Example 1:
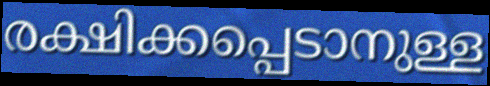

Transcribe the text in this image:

രക്ഷിക്കപ്പെടാനുള്ള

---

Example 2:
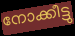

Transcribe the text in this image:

നോക്കീട്ടു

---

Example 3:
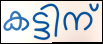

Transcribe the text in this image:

കട്ടിന്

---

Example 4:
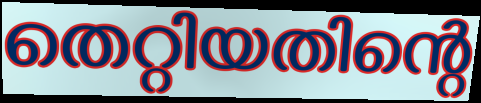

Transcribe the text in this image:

തെറ്റിയതിന്റെ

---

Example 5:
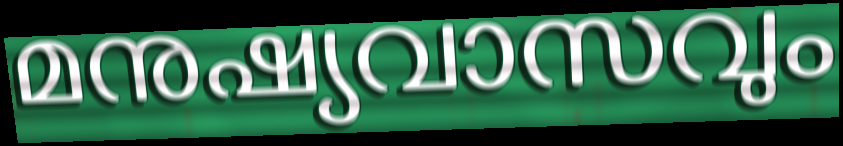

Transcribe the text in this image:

മനുഷ്യവാസവും